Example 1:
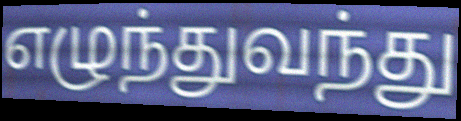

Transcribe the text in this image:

எழுந்துவந்து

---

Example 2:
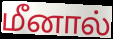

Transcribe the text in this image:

மீனால்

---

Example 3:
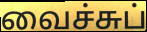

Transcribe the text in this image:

வைச்சுப்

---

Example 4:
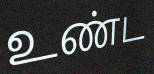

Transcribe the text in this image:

உண்ட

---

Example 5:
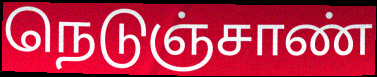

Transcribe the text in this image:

நெடுஞ்சாண்